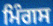
ਮਿੰਗਸ